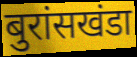
बुरांसखंडा